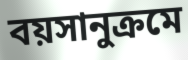
বয়সানুক্রমে